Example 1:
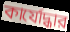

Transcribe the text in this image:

কার্যোদ্ধার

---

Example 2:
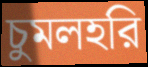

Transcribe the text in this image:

চুমলহরি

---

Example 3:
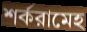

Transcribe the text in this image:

শর্করামেহ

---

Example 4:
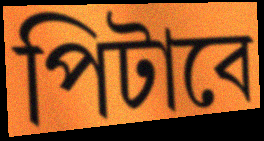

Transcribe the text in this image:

পিটাবে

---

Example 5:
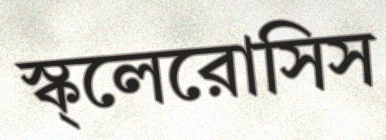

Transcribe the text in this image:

স্ক্লেরোসিস